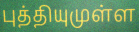
புத்தியுமுள்ள